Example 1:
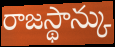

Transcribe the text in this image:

రాజస్థాన్కు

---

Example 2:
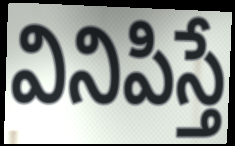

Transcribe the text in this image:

వినిపిస్తే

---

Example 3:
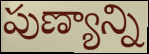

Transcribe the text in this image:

పుణ్యాన్ని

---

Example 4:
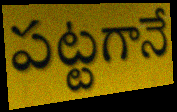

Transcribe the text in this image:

పట్టగానే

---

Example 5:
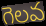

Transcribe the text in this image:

గెలవ